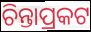
ଚିନ୍ତାପ୍ରକଟ